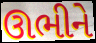
ઊભીને